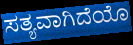
ಸತ್ಯವಾಗಿದೆಯೊ